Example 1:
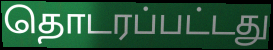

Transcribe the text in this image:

தொடரப்பட்டது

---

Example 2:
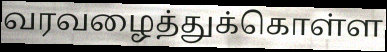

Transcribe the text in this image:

வரவழைத்துக்கொள்ள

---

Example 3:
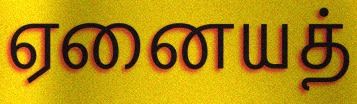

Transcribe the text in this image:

ஏனையத்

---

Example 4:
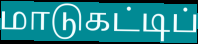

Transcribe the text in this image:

மாடுகட்டிப்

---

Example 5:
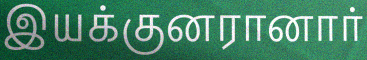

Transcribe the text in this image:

இயக்குனரானார்